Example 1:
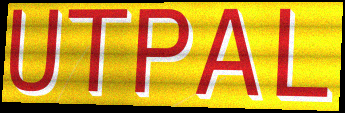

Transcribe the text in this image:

UTPAL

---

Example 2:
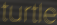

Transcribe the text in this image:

turtle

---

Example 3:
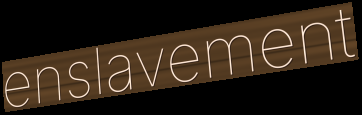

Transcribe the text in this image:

enslavement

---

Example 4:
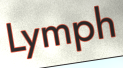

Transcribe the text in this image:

Lymph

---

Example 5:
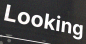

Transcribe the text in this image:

Looking